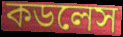
কডলেস